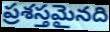
ప్రశస్తమైనది